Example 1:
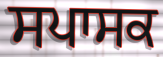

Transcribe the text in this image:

ਸਪਾਸਕ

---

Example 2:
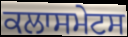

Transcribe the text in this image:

ਕਲਾਸਮੇਟਸ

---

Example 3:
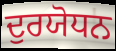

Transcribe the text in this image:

ਦੁਰਯੋਧਨ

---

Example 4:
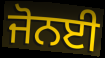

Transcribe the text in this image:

ਜੋਨਈ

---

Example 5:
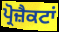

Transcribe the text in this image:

ਪ੍ਰੋਜ਼ੈਕਟਾਂ